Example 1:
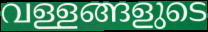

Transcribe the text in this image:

വള്ളങ്ങളുടെ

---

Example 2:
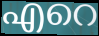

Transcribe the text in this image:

എറെ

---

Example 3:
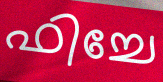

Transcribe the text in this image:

ഫിച്ചേ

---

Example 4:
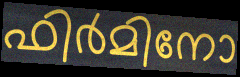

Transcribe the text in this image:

ഫിർമിനോ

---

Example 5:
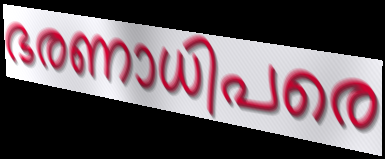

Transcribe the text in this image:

ഭരണാധിപരെ